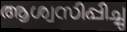
ആശ്വസിപ്പിച്ചു